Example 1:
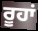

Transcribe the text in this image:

ਰੂਹਾਂ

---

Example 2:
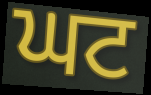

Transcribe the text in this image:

ਘਟ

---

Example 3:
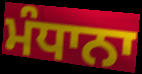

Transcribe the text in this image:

ਮੰਧਾਨਾ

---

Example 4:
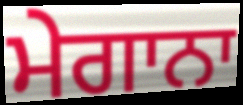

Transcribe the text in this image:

ਮੇਗਾਨਾ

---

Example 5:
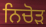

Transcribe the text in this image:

ਨਿਚੋੜ